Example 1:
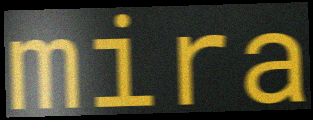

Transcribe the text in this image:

mira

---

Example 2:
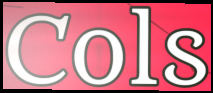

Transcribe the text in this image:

Cols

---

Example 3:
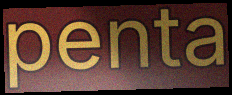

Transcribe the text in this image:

penta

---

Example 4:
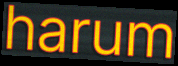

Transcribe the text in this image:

harum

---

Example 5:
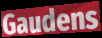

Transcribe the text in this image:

Gaudens